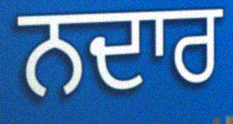
ਨਦਾਰ